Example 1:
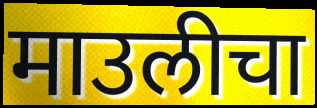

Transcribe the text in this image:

माउलीचा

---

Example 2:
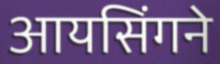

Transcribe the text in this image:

आयसिंगने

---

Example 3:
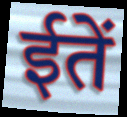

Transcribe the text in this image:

ईतें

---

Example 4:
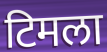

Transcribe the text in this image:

टिमला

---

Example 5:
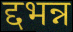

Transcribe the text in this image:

द्दभन्न